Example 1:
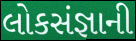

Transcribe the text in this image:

લોકસંજ્ઞાની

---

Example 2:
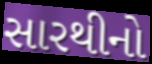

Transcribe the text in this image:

સારથીનો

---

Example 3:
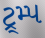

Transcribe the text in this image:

ટ્ર્મ્પ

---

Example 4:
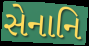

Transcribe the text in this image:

સેનાનિ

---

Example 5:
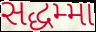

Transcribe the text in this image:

સદ્ધમ્મા